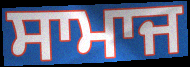
ਸਾਮਾਜ